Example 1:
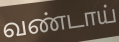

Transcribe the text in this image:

வண்டாய்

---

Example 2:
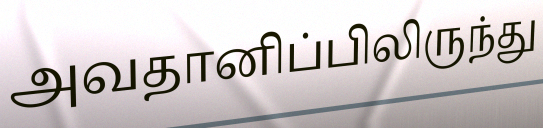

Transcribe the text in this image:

அவதானிப்பிலிருந்து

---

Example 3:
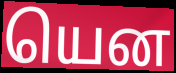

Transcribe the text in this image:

யென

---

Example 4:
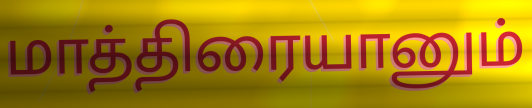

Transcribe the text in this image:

மாத்திரையானும்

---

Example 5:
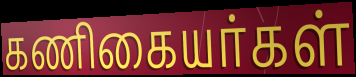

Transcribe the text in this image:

கணிகையர்கள்